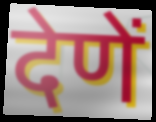
देणें